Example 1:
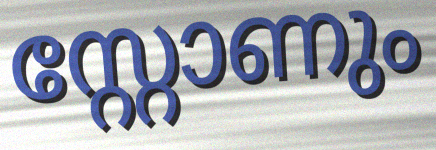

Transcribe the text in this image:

സ്റ്റോണും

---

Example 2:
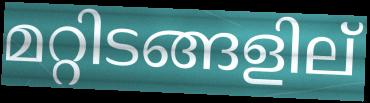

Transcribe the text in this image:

മറ്റിടങ്ങളില്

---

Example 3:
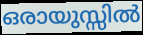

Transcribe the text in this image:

ഒരായുസ്സിൽ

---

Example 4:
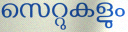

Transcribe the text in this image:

സെറ്റുകളും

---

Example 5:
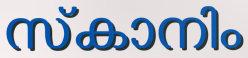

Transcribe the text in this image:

സ്‌കാനിം